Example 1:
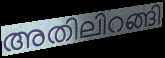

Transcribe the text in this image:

അതിലിറങ്ങി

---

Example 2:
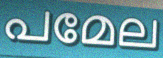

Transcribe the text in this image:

പമേല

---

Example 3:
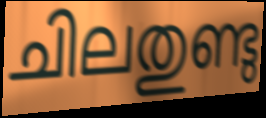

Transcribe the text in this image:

ചിലതുണ്ടു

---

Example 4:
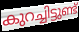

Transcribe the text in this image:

കുറച്ചിട്ടുണ്ട്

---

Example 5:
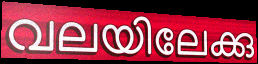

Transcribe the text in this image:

വലയിലേക്കു